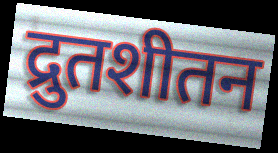
द्रुतशीतन